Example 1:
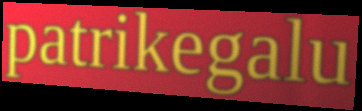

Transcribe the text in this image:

patrikegalu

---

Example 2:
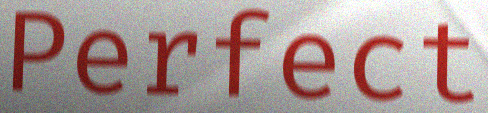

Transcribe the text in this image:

Perfect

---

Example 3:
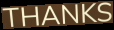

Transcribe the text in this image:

THANKS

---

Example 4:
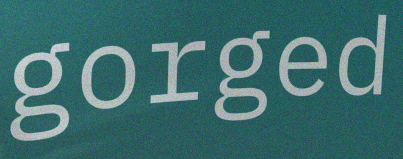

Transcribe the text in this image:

gorged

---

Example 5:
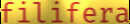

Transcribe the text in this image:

filifera